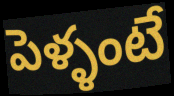
పెళ్ళంటే